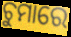
ଚୁମାରେ